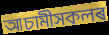
আচামীসকলৰ